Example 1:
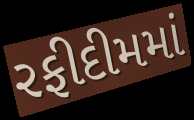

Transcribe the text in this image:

રફીદીમમાં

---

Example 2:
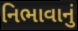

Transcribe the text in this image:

નિભાવાનું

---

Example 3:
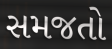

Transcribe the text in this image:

સમજતો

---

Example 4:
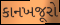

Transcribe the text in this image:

કાનખજૂરો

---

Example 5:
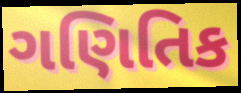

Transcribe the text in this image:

ગણિતિક